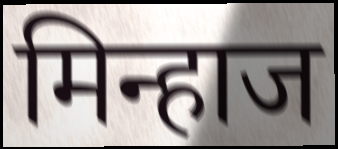
मिन्हाज